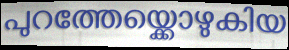
പുറത്തേയ്ക്കൊഴുകിയ